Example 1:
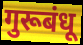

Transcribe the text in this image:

गुरूबंधू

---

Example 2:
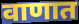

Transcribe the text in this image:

वाणात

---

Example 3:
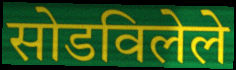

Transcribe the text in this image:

सोडविलेले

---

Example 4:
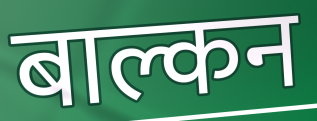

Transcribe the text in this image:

बाल्कन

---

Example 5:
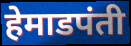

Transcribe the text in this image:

हेमाडपंती